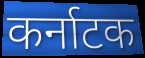
कर्नाटक